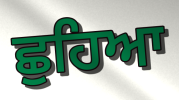
ਛੁਹਿਆ